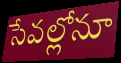
సేవల్లోనూ